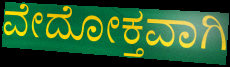
ವೇದೋಕ್ತವಾಗಿ